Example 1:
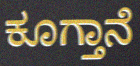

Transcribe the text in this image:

ಕೂಗ್ತಾನೆ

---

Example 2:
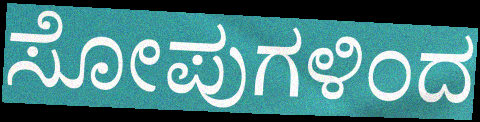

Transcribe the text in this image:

ಸೋಪುಗಳಿಂದ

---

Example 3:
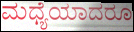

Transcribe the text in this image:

ಮಧ್ಯೆಯಾದರೂ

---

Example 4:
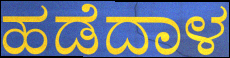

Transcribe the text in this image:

ಹಡೆದಾಳ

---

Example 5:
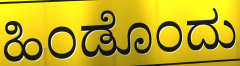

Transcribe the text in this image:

ಹಿಂಡೊಂದು